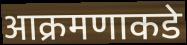
आक्रमणाकडे